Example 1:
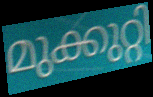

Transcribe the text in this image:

മുക്കുറ്റി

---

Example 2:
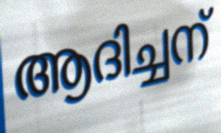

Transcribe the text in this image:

ആദിച്ചന്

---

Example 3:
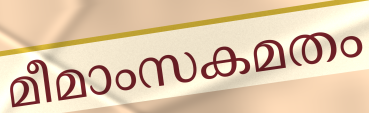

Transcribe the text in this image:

മീമാംസകമതം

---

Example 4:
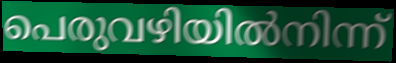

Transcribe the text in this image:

പെരുവഴിയിൽനിന്ന്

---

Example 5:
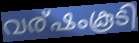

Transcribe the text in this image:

വര്ഷംകൂടി